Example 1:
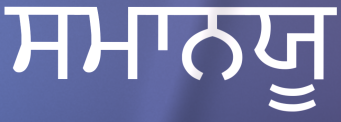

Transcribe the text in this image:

ਸਮਾਨਯੂ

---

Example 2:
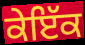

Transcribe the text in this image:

ਕੇਇੱਕ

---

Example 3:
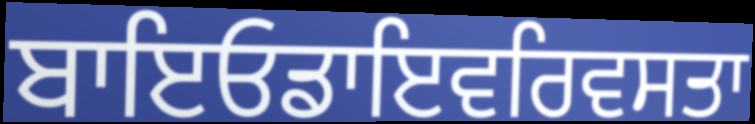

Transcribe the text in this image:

ਬਾਇਓਡਾਇਵਰਿਵਸਤਾ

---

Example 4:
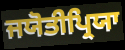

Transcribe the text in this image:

ਜਯੋਤੀਪ੍ਰਿਯਾ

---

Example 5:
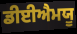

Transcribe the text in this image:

ਡੀਈਐਮਯੂ